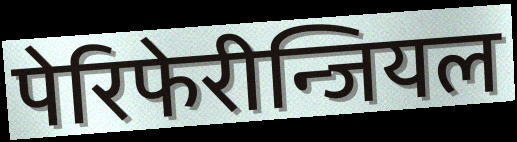
पेरिफेरीन्जियल